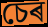
চেৰ